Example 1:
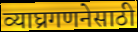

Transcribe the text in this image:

व्याघ्रगणनेसाठी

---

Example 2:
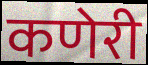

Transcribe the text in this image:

कणेरी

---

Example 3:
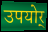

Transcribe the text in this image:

उपयोर्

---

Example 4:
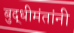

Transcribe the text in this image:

बुद्धीमंतांनी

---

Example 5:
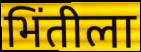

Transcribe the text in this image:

भिंतीला